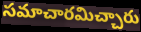
సమాచారమిచ్చారు